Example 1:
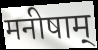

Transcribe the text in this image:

मनीषाम्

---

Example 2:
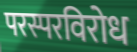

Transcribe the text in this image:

परस्परविरोध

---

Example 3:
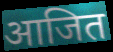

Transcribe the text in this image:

आजित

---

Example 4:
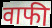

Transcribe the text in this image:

वाफी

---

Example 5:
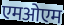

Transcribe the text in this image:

एमओएम